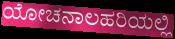
ಯೋಚನಾಲಹರಿಯಲ್ಲಿ